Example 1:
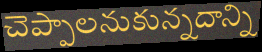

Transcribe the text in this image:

చెప్పాలనుకున్నదాన్ని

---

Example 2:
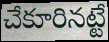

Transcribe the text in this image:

చేకూరినట్టే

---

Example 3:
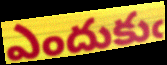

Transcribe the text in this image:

ఎందుకుఁ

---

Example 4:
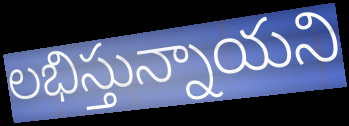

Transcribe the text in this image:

లభిస్తున్నాయని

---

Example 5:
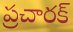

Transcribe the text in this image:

ప్రచారక్